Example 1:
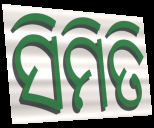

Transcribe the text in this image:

ସିମିତି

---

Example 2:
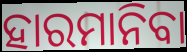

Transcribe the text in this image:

ହାରମାନିବା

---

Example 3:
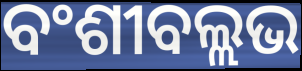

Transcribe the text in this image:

ବଂଶୀବଲ୍ଲଭ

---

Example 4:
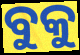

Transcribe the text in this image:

ବୁକୁ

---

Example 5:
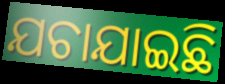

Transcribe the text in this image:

ଯଚାଯାଇଛି